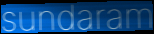
sundaram